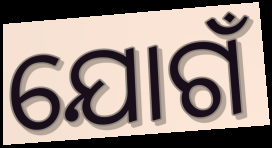
ଯୋଗଁ